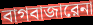
বাগবাজারেনা